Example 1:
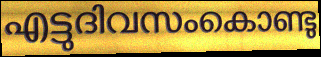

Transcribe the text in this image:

എട്ടുദിവസംകൊണ്ടു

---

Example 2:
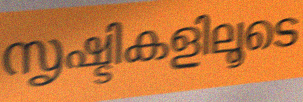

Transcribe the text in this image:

സൃഷ്ടികളിലൂടെ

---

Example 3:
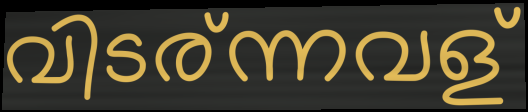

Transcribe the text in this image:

വിടര്ന്നവള്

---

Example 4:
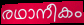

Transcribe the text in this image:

രഥാനീകം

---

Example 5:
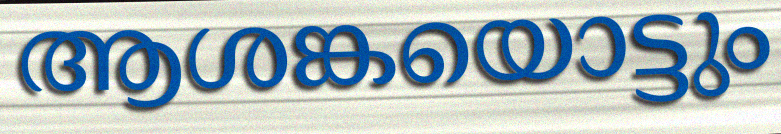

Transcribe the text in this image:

ആശങ്കയൊട്ടും